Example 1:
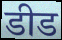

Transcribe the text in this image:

डीड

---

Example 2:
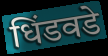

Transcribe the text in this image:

धिंडवडे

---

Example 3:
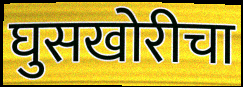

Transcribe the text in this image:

घुसखोरीचा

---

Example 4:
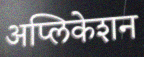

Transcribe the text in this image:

अप्लिकेशन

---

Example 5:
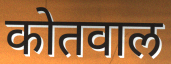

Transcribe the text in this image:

कोतवाल